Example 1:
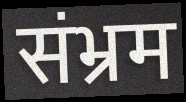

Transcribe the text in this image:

संभ्रम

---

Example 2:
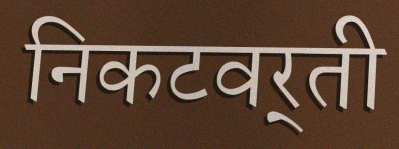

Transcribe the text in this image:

निकटवर्ती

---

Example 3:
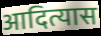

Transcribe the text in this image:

आदित्यास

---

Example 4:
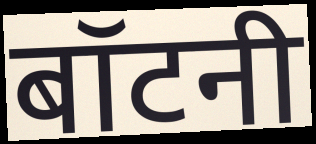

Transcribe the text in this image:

बॉटनी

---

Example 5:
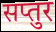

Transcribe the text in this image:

सप्तुर